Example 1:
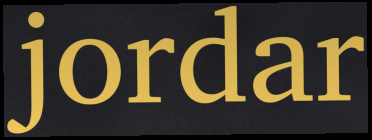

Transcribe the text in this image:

jordar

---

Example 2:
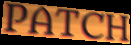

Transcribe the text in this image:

PATCH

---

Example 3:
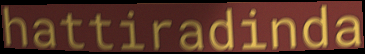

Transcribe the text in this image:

hattiradinda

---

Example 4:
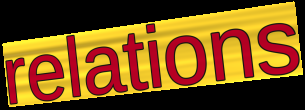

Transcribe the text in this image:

relations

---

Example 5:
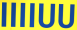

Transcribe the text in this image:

IIIIUU